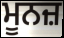
ਮੂਨਜ਼